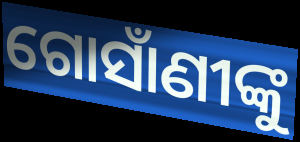
ଗୋସାଁଣୀଙ୍କୁ